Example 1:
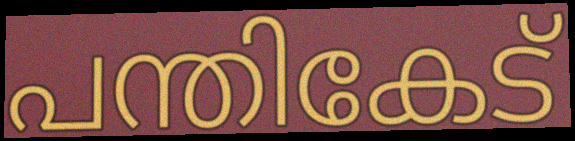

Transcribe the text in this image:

പന്തികേട്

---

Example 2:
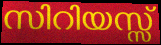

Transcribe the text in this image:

സിറിയസ്സ്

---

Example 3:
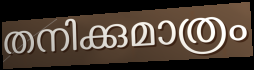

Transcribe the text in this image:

തനിക്കുമാത്രം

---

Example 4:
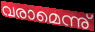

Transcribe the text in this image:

വരാമെന്നു്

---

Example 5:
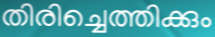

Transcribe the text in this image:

തിരിച്ചെത്തിക്കും